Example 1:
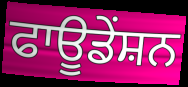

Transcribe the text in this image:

ਫਾਊਡੇਂਸ਼ਨ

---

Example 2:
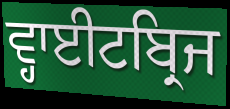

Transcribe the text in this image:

ਵ੍ਹਾਈਟਬ੍ਰਿਜ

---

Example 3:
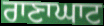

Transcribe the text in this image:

ਰਾਣਾਘਾਟ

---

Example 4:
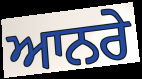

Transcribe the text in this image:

ਆਨਰੇ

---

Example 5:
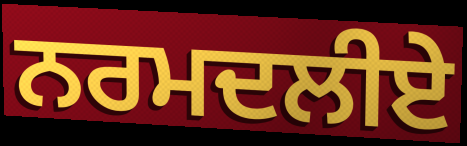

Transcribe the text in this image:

ਨਰਮਦਲੀਏ